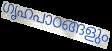
ഗൃഹപാഠങ്ങളും